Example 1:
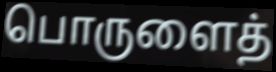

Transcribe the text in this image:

பொருளைத்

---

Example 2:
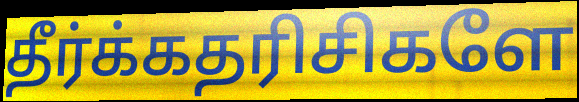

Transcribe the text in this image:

தீர்க்கதரிசிகளே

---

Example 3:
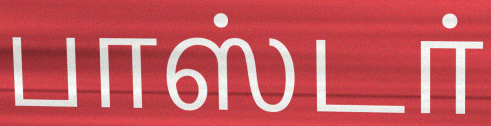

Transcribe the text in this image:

பாஸ்டர்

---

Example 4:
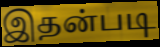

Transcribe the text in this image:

இதன்படி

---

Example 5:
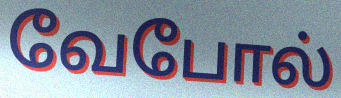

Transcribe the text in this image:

வேபோல்